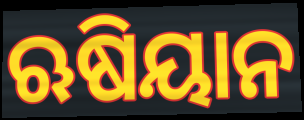
ଋଷିୟାନ